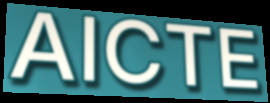
AICTE